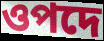
ওপদে